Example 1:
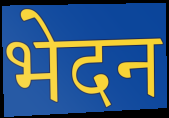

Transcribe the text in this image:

भेदन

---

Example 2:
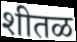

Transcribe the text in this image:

शीतळ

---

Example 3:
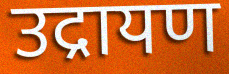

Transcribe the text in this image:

उद्रायण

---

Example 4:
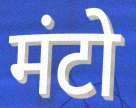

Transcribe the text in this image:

मंटो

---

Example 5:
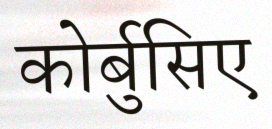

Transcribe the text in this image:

कोर्बुसिए